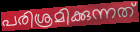
പരിശ്രമിക്കുന്നത്